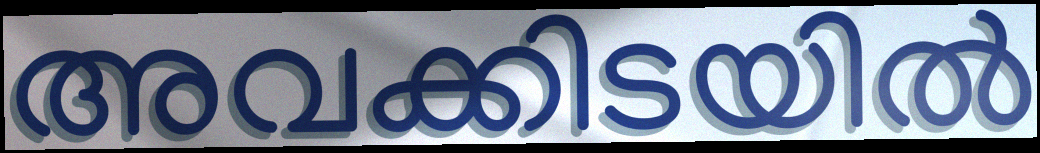
അവക്കിടയിൽ